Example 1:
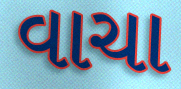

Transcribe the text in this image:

વાચા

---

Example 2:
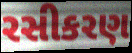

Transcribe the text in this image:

રસીકરણ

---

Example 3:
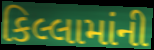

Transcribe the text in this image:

કિલ્લામાંની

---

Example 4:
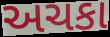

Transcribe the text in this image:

અચકા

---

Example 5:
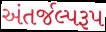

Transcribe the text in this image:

અંતર્જલ્પરૂપ